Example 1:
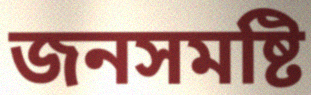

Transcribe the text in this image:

জনসমষ্টি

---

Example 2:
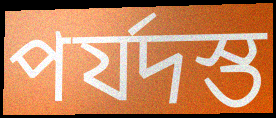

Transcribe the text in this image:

পর্যদস্ত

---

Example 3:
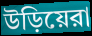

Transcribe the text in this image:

উড়িয়েরা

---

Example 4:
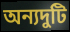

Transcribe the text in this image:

অন্যদুটি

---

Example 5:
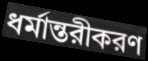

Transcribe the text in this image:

ধর্মান্তরীকরণ